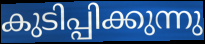
കുടിപ്പിക്കുന്നു